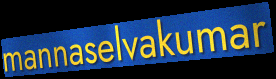
mannaselvakumar